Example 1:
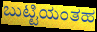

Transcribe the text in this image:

ಬುಟ್ಟಿಯಂತಹ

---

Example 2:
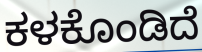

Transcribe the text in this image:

ಕಳಕೊಂಡಿದೆ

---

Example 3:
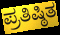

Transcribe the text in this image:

ಪ್ರತಿಷ್ಠಿತ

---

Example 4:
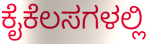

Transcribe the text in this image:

ಕೈಕೆಲಸಗಳಲ್ಲಿ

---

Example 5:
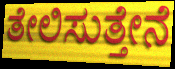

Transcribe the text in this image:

ತೇಲಿಸುತ್ತೇನೆ